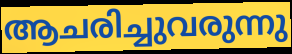
ആചരിച്ചുവരുന്നു